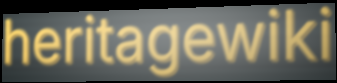
heritagewiki